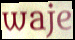
waje